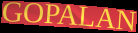
GOPALAN